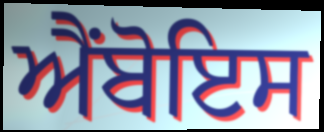
ਐਂਬੋਇਸ